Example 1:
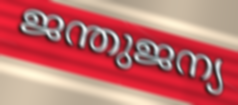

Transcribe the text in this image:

ജന്തുജന്യ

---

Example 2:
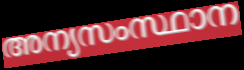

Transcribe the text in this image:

അന്യസംസ്ഥാന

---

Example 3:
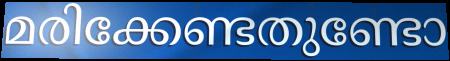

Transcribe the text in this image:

മരിക്കേണ്ടതുണ്ടോ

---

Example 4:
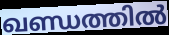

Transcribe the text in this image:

ഖണ്ഡത്തിൽ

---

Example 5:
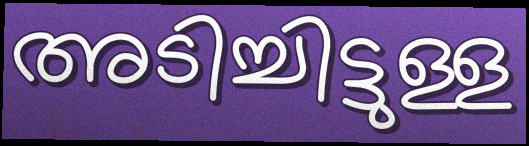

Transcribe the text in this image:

അടിച്ചിട്ടുള്ള